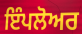
ਇੰਪਲੋਅਰ